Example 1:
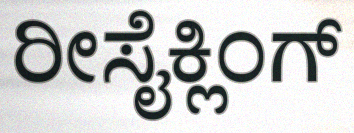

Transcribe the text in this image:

ರೀಸೈಕ್ಲಿಂಗ್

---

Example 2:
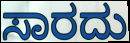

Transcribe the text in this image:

ಸಾರದು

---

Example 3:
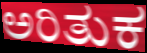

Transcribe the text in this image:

ಅರಿತುಕ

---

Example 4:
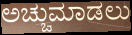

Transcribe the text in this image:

ಅಚ್ಚುಮಾಡಲು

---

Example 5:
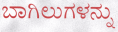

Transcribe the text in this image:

ಬಾಗಿಲುಗಳನ್ನು